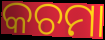
କଚମା